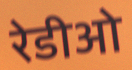
रेडीओ